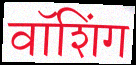
वॉशिंग